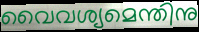
വൈവശ്യമെന്തിനു